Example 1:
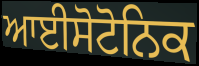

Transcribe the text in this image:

ਆਈਸੋਟੋਨਿਕ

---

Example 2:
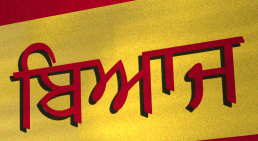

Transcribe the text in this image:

ਬਿਆਜ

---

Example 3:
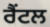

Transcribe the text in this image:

ਰੈਂਟਲ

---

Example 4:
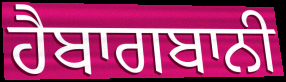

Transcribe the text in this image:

ਹੈਬਾਗਬਾਨੀ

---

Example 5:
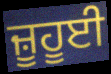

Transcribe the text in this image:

ਜ਼ੂਹੂਈ